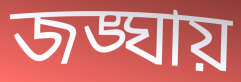
জঙ্ঘায়